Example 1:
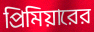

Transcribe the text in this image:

প্রিমিয়ারের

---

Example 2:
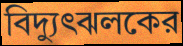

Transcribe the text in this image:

বিদ্যুৎঝলকের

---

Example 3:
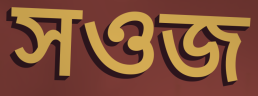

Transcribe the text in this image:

সওজ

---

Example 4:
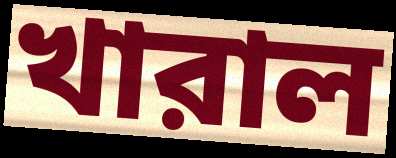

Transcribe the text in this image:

খারাল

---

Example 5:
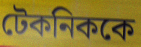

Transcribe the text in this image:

টেকনিককে